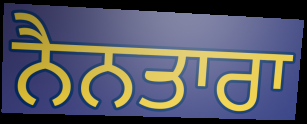
ਨੈਨਤਾਰਾ